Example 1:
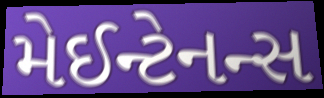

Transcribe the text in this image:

મેઈન્ટેનન્સ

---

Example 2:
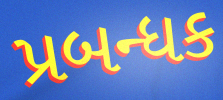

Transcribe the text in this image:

પ્રબન્ધક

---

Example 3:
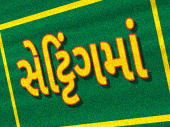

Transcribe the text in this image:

સેટ્ટિંગમાં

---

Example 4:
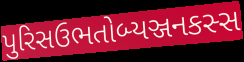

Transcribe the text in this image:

પુરિસઉભતોબ્યઞ્જનકસ્સ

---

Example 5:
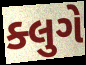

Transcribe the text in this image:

ક્લુગે